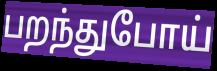
பறந்துபோய்